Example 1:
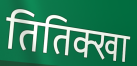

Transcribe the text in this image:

तितिक्खा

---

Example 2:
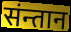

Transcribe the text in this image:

संन्तान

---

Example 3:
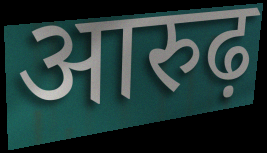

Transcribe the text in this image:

आरुढ़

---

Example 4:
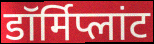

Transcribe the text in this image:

डॉर्मिप्लांट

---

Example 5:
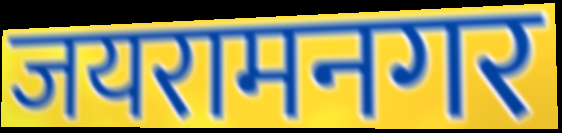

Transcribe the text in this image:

जयरामनगर